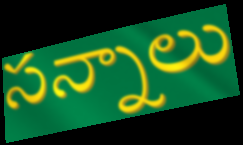
సన్నాలు